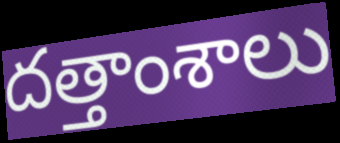
దత్తాంశాలు